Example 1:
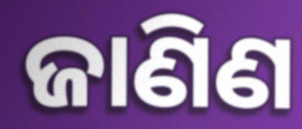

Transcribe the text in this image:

ଜାଣିଣ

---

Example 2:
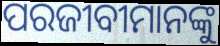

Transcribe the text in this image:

ପରଜୀବୀମାନଙ୍କୁ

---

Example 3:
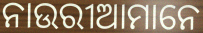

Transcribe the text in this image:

ନାଉରୀଆମାନେ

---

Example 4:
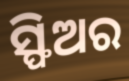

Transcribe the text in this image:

ସ୍ଫିଅର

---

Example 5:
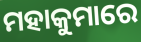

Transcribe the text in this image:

ମହାକୁମାରେ